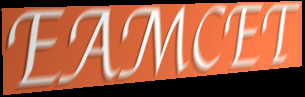
EAMCET